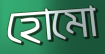
হোমো